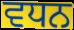
ਵਧਨ